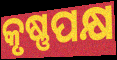
କୃଷ୍ଣପକ୍ଷ